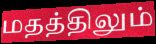
மதத்திலும்